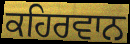
ਕਹਿਰਵਾਨ